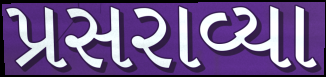
પ્રસરાવ્યા